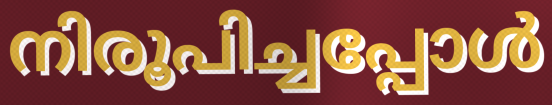
നിരൂപിച്ചപ്പോൾ